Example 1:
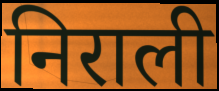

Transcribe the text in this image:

निराली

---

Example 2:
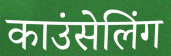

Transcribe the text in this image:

काउंसेलिंग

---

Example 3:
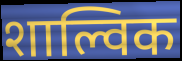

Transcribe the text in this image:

शाल्विक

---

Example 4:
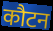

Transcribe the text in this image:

कौटन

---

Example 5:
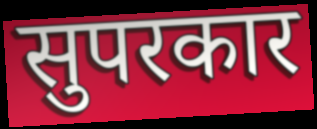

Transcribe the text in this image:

सुपरकार